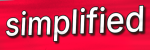
simplified